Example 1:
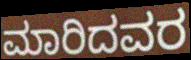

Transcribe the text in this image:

ಮಾರಿದವರ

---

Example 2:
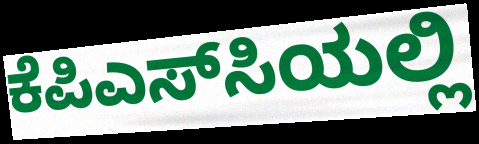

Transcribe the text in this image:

ಕೆಪಿಎಸ್‌ಸಿಯಲ್ಲಿ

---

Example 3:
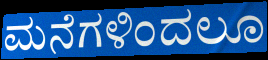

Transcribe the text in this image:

ಮನೆಗಳಿಂದಲೂ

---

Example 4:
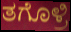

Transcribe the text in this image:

ತಗೊಳ್ರಿ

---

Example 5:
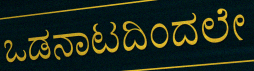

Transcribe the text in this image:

ಒಡನಾಟದಿಂದಲೇ